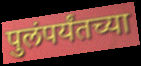
पुलंपर्यंतच्या